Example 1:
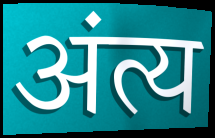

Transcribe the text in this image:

अंत्य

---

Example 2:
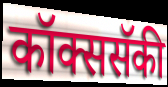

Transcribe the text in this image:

कॉक्ससॅकी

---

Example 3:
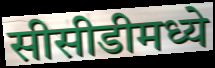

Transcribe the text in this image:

सीसीडीमध्ये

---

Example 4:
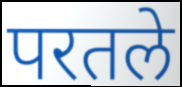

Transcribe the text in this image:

परतले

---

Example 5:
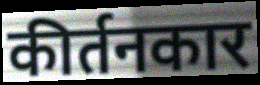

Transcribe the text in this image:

कीर्तनकार